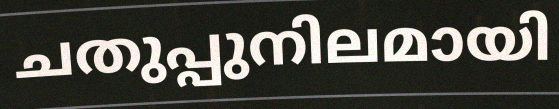
ചതുപ്പുനിലമായി